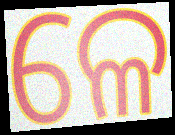
ଳେ